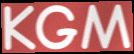
KGM